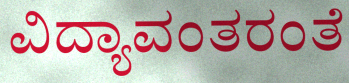
ವಿದ್ಯಾವಂತರಂತೆ